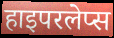
हाइपरलेप्स